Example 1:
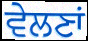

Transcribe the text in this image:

ਵੇਲਣਾਂ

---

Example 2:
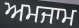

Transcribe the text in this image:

ਅਮਜਾਮ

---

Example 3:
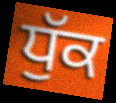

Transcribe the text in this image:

ਧੁੱਕ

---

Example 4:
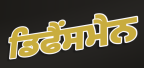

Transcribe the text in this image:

ਡਿਫੈਂਸਮੈਨ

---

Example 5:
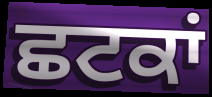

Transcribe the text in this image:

ਛਟਕਾਂ